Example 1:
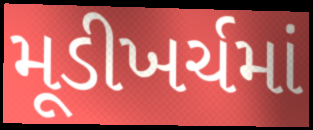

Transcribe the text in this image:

મૂડીખર્ચમાં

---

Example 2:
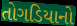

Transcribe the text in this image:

તોગડિયાનો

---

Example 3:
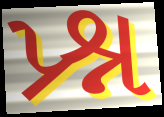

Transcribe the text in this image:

પ્ર્શ્ન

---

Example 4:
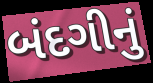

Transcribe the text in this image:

બંદગીનું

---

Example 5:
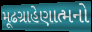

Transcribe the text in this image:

મૂઢગ્રાહેણાત્મનો